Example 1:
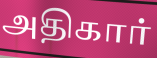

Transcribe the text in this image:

அதிகார்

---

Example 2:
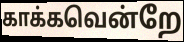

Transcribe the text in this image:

காக்கவென்றே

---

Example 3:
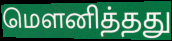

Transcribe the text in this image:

மௌனித்தது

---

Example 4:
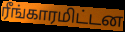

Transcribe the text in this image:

ரீங்காரமிட்டன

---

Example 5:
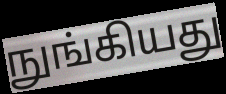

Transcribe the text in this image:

நுங்கியது